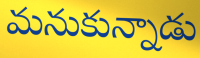
మనుకున్నాడు